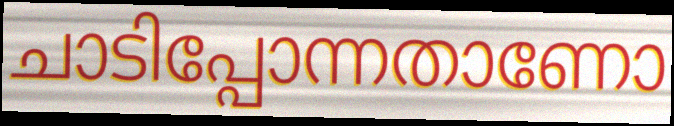
ചാടിപ്പോന്നതാണോ